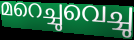
മറെച്ചുവെച്ചു